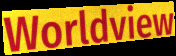
Worldview